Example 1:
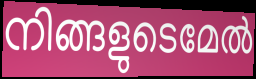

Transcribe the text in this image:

നിങ്ങളുടെമേൽ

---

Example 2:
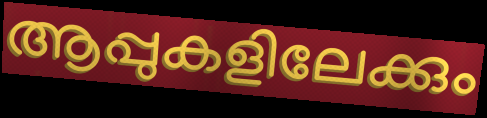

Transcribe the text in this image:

ആപ്പുകളിലേക്കും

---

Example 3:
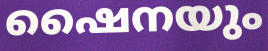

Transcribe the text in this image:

ഷൈനയും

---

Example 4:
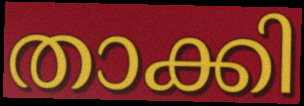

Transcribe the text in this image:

താക്കി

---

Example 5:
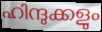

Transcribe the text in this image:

ഹിന്ദുക്കളും